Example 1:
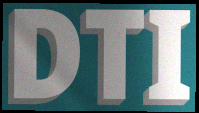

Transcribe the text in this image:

DTI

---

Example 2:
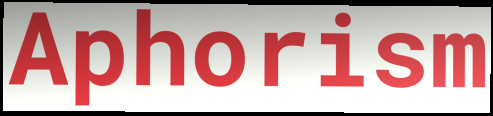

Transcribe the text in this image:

Aphorism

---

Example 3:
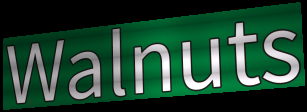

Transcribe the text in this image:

Walnuts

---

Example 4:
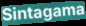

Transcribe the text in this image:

Sintagama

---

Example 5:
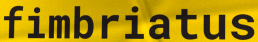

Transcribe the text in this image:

fimbriatus